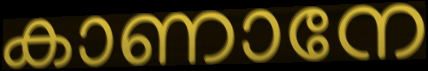
കാണാനേ